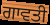
ਗਾਵਤੀ